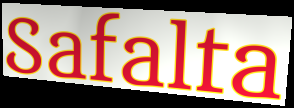
Safalta